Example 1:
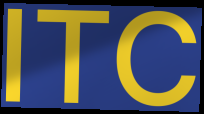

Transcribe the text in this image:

ITC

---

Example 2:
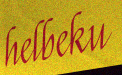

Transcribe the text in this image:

helbeku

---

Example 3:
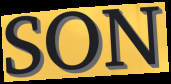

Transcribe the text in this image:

SON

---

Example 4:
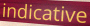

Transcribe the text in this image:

indicative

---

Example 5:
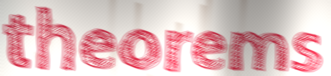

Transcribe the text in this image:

theorems